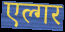
एल्गर